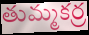
తుమ్మకర్ర